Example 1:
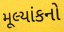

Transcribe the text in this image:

મૂલ્યાંકનો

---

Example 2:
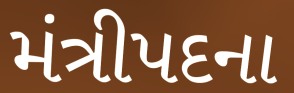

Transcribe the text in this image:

મંત્રીપદના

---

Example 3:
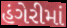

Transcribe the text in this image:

હંગેરીમાં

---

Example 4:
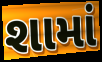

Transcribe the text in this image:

શામાં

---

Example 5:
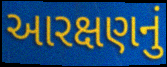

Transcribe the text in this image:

આરક્ષણનું